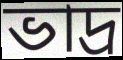
ভাদ্র